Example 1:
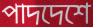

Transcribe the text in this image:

পাদদেশে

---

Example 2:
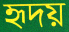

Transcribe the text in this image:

হৃদয়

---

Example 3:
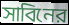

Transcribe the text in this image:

সাবিনের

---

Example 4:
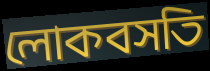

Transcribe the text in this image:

লোকবসতি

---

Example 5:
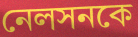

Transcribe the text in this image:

নেলসনকে